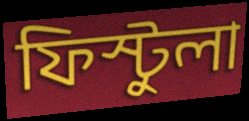
ফিস্টুলা